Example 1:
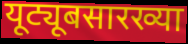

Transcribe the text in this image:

यूट्यूबसारख्या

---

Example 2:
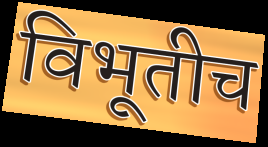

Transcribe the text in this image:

विभूतीच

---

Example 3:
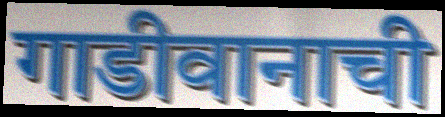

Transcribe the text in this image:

गाडीवानाची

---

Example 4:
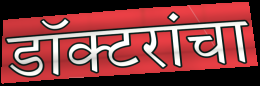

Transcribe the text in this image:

डॉक्टरांचा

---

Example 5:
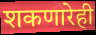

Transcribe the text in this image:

शकणारेही